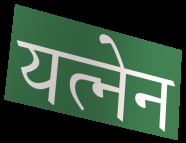
यत्नेन